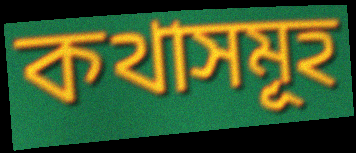
কথাসমূহ